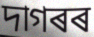
দাগৰৰ